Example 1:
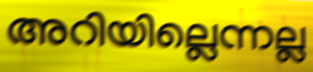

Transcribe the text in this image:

അറിയില്ലെന്നല്ല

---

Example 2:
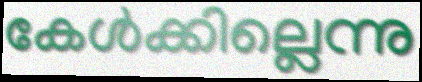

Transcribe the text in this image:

കേൾക്കില്ലെന്നു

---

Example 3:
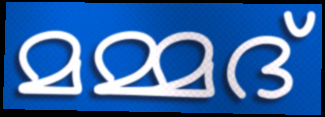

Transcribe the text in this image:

മമ്മദ്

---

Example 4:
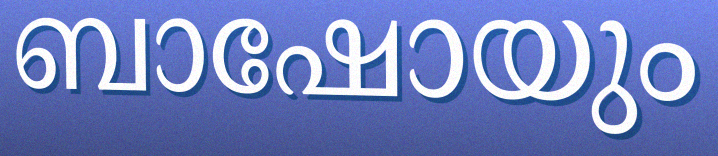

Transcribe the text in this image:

ബാഷോയും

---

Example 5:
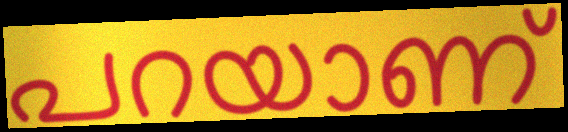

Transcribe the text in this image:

പറയാണ്